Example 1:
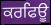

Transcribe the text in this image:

ਕਰਫਿਊ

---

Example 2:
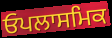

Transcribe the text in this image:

ਓਪਲਾਸਮਿਕ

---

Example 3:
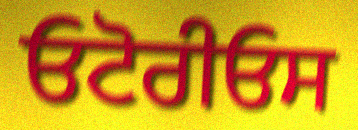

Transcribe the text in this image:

ਓਟੋਰੀਓਸ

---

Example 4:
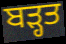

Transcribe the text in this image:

ਬੜ੍ਹਤ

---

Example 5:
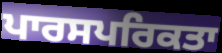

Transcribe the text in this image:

ਪਾਰਸਪਰਿਕਤਾ